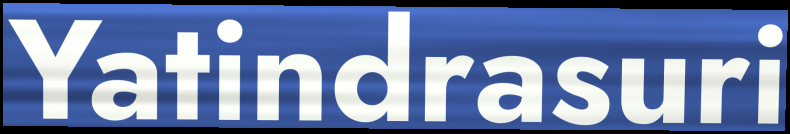
Yatindrasuri